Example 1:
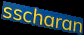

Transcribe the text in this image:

sscharan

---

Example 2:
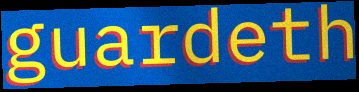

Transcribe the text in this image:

guardeth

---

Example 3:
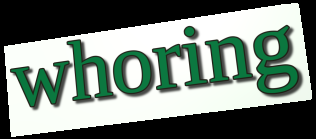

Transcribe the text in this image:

whoring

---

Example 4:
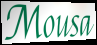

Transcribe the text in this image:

Mousa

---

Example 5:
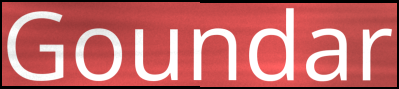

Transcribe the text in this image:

Goundar